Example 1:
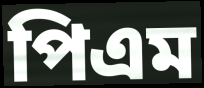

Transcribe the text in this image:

পিএম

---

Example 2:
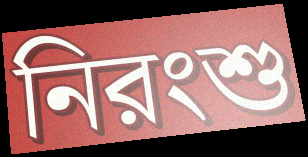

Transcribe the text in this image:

নিরংশু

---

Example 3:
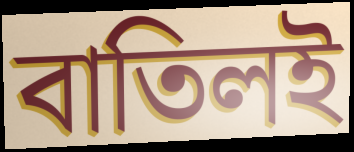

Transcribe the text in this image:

বাতিলই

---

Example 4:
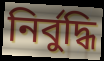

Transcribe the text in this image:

নির্বুদ্ধি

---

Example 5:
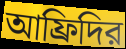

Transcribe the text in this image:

আফ্রিদির